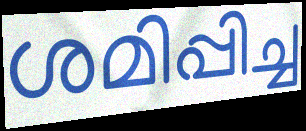
ശമിപ്പിച്ച